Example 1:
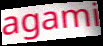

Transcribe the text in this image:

agami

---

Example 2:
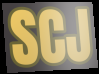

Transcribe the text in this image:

SCJ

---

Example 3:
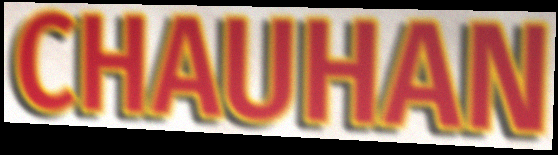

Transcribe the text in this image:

CHAUHAN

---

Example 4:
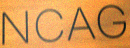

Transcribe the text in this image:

NCAG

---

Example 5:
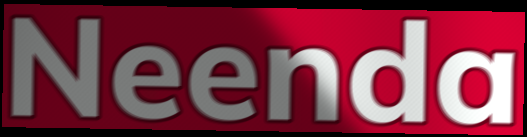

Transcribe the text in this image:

Neenda